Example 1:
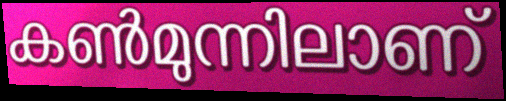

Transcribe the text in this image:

കൺമുന്നിലാണ്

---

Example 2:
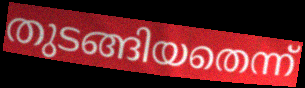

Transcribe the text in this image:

തുടങ്ങിയതെന്ന്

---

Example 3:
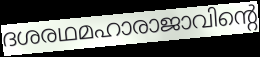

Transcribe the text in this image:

ദശരഥമഹാരാജാവിന്റെ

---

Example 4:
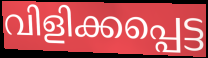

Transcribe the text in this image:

വിളിക്കപ്പെട്ട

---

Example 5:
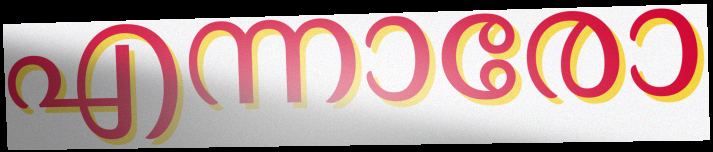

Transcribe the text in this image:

എന്നാരോ